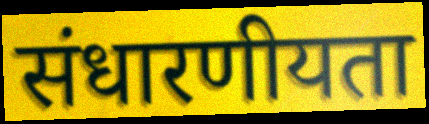
संधारणीयता